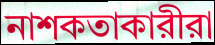
নাশকতাকারীরা